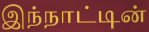
இந்நாட்டின்